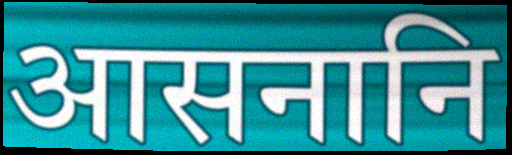
आसनानि